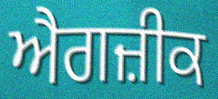
ਐਗਜ਼ੀਕ